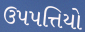
ઉપપત્તિયો